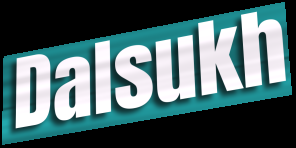
Dalsukh